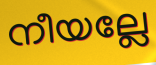
നീയല്ലേ